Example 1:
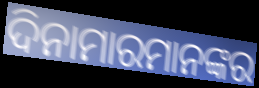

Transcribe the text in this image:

ଦିନାମାରମାନଙ୍କର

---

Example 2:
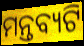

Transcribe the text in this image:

ମନ୍ତବ୍ୟଟି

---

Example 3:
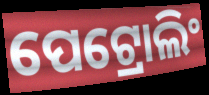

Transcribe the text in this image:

ପେଟ୍ରୋଲିଂ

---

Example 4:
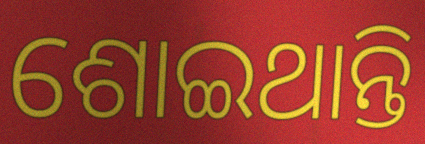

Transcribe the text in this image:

ଶୋଇଥାନ୍ତି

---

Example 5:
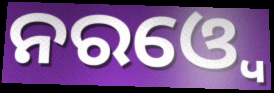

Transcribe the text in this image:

ନରଓ୍ୱେ